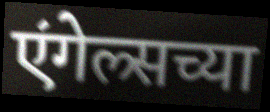
एंगेल्सच्या